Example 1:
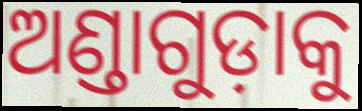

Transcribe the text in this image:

ଅଣ୍ଡାଗୁଡ଼ାକୁ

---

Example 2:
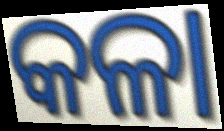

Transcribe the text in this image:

କଳା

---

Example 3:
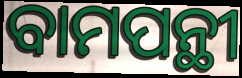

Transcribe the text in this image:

ବାମପନ୍ଥୀ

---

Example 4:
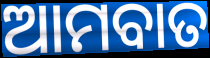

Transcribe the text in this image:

ଆମବାତ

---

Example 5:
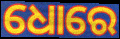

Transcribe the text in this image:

ଧୋରେ